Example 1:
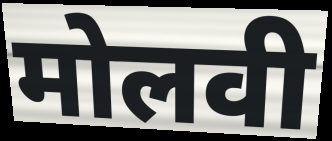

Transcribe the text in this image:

मोलवी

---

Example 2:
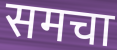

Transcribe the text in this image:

समचा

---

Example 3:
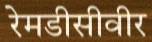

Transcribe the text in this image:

रेमडीसीवीर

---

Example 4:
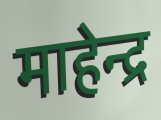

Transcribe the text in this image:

माहेन्द्र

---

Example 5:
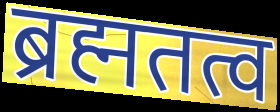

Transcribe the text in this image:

ब्रह्मतत्व